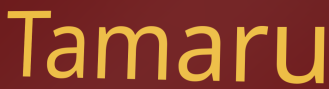
Tamaru